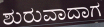
ಶುರುವಾದಾಗ